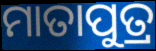
ମାତାପୁତ୍ର